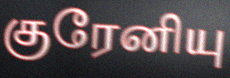
குரேனியு